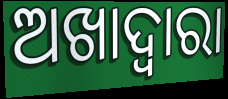
ଅଖାଦ୍ୱାରା